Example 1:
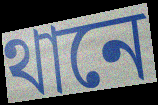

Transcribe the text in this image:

থানে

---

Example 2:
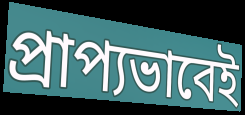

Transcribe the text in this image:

প্রাপ্যভাবেই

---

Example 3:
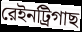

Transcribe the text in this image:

রেইনট্রিগাছ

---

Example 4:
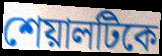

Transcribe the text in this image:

শেয়ালটিকে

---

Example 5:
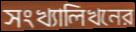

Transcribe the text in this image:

সংখ্যালিখনের